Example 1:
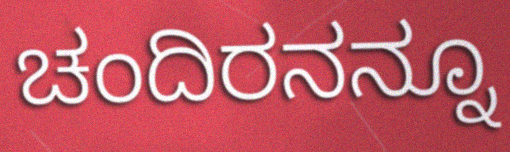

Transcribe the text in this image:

ಚಂದಿರನನ್ನೂ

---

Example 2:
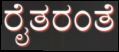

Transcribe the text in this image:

ರೈತರಂತೆ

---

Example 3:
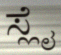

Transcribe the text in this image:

ಸ್ಲೈ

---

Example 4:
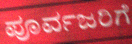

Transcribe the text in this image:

ಪೂರ್ವಜರಿಗೆ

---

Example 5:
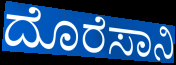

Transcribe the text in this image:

ದೊರೆಸಾನಿ